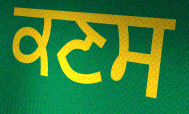
ਕਣਸ